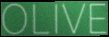
OLIVE